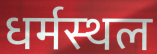
धर्मस्थल